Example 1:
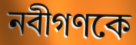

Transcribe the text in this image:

নবীগণকে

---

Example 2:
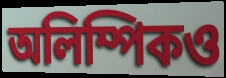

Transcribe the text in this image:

অলিম্পিকও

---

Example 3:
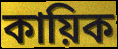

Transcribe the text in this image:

কায়িক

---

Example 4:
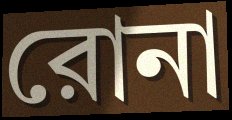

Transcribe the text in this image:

রোনা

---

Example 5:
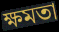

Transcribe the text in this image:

ক্ষমতা